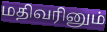
மதிவரினும்